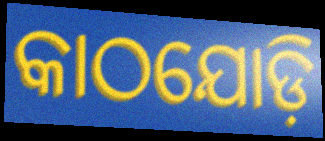
କାଠଯୋଡ଼ି